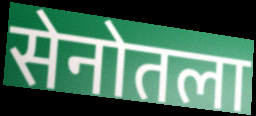
सेनोतला